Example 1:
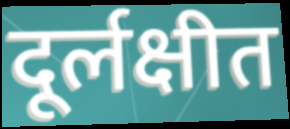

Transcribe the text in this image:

दूर्लक्षीत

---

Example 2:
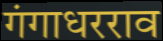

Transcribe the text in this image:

गंगाधरराव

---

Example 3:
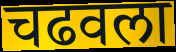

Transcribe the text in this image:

चढवला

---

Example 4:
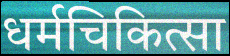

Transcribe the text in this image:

धर्मचिकित्सा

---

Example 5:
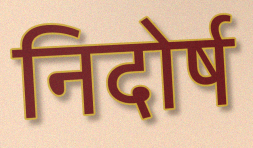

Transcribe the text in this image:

निदोर्ष